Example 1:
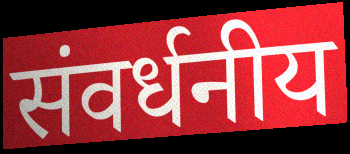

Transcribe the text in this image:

संवर्धनीय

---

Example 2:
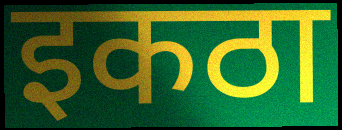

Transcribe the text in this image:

इकठा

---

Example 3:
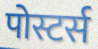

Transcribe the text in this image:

पोस्टर्स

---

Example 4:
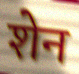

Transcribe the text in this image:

शेन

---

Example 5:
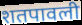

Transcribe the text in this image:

शतपावली